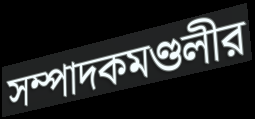
সম্পাদকমণ্ডলীর